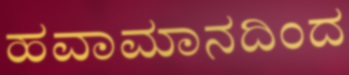
ಹವಾಮಾನದಿಂದ